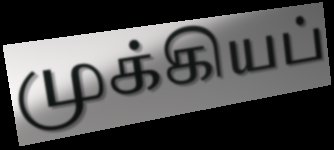
முக்கியப்